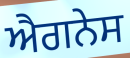
ਐਗਨੇਸ